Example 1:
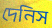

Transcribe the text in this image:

দেনিস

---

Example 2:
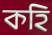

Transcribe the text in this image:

কহি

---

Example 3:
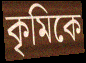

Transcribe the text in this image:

কৃমিকে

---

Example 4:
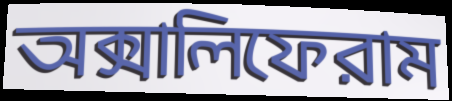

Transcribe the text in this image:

অক্সালিফেরাম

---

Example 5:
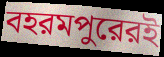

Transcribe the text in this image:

বহরমপুরেরই